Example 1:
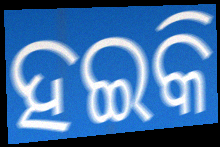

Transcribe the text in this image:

ହଇକି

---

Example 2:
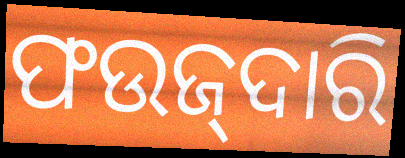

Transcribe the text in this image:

ଫଉଜ୍‌ଦାରି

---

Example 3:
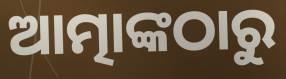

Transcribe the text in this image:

ଆତ୍ମାଙ୍କଠାରୁ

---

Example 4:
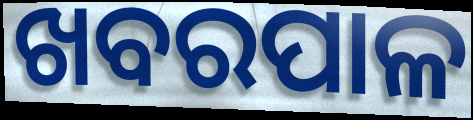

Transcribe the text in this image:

ଖବରପାଳ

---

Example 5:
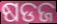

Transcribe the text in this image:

ଷଡଜ